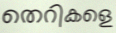
തെറികളെ